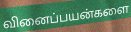
வினைப்பயன்களை